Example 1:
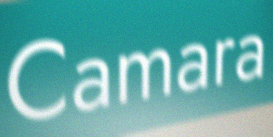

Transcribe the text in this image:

Camara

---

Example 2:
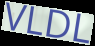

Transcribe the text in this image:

VLDL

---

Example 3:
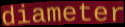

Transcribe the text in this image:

diameter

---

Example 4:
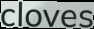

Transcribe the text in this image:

cloves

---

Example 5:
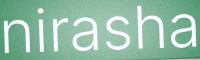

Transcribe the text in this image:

nirasha